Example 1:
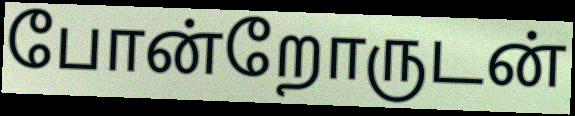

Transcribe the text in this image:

போன்றோருடன்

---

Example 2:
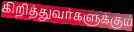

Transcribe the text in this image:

கிறித்துவர்களுக்கும்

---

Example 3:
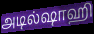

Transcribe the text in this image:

அடில்ஷாஹி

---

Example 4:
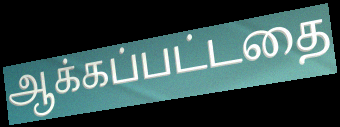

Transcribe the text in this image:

ஆக்கப்பட்டதை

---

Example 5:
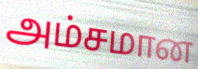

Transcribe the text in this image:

அம்சமான